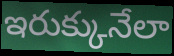
ఇరుక్కునేలా